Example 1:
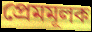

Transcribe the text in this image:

প্রেমমূলক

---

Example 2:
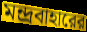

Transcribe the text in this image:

মন্দ্রবাহারের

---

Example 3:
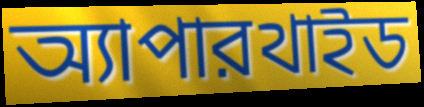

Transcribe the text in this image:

অ্যাপারথাইড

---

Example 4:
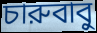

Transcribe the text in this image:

চারুবাবু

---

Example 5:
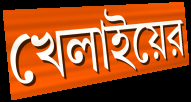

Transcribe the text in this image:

খেলাইয়ের